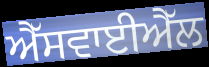
ਐੱਸਵਾਈਐੱਲ